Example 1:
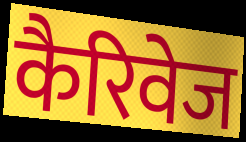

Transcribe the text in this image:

कैरिवेज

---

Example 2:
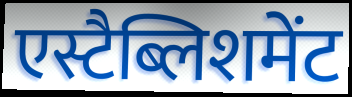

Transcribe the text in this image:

एस्टैब्लिशमेंट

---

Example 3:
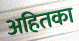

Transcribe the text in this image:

अहितका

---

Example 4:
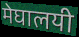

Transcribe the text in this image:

मेघालयी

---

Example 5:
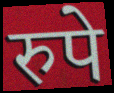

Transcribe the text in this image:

रुपे